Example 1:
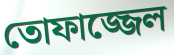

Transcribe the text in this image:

তোফাজ্জেল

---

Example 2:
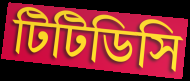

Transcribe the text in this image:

টিটিডিসি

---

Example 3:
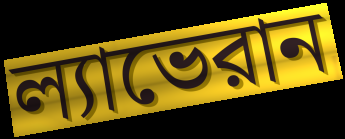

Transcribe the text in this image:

ল্যাভেরান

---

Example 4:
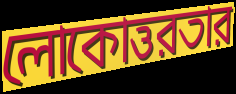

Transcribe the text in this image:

লোকোত্তরতার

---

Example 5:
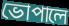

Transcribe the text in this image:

ভোপালে